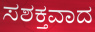
ಸಶಕ್ತವಾದ